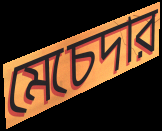
মেচেদার